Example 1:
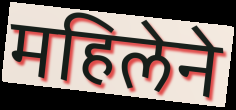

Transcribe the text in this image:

महिलेने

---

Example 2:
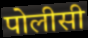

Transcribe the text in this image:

पोलीसी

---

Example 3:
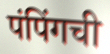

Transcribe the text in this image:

पंपिंगची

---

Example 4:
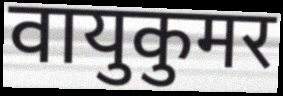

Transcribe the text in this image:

वायुकुमर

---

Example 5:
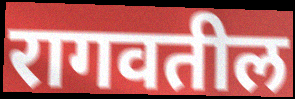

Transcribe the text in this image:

रागवतील